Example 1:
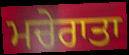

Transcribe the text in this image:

ਮਚੇਰਾਤਾ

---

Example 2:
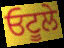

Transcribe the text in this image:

ਓਟੂਲੇ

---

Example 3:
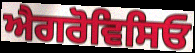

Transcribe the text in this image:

ਐਗਰੋਵਿਸਿਓ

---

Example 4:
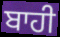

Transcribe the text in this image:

ਬਾਹੀ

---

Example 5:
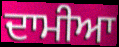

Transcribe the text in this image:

ਦਾਮੀਆ